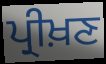
ਪ੍ਰੀਖ਼ਣ